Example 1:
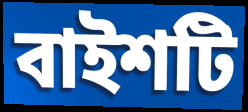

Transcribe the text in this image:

বাইশটি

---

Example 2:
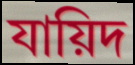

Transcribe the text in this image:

যায়িদ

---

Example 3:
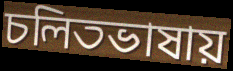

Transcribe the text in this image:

চলিতভাষায়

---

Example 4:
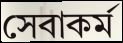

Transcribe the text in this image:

সেবাকর্ম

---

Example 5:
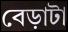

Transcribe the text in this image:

বেড়াটা